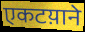
एकटय़ाने